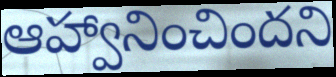
ఆహ్వానించిందని